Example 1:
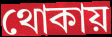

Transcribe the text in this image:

থোকায়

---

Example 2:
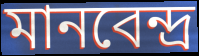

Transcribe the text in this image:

মানবেন্দ্র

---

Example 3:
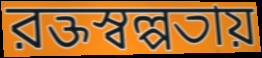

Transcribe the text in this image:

রক্তস্বল্পতায়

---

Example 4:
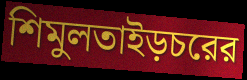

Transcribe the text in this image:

শিমুলতাইড়চরের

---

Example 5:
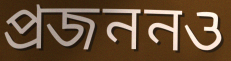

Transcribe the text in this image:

প্রজননও